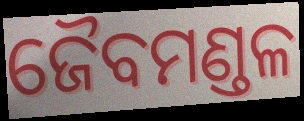
ଜୈବମଣ୍ଡଳ